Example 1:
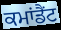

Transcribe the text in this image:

ਕਮਾਂਡੈਂਟ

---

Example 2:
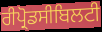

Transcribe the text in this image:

ਰੀਪ੍ਰੋਡਸੀਬਿਲਟੀ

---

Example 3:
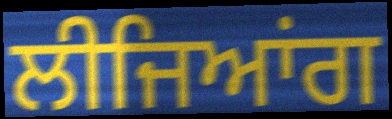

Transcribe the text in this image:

ਲੀਜਿਆਂਗ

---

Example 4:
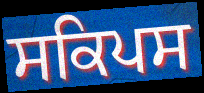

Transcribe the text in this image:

ਸਕਿਪਸ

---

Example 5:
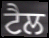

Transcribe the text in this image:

ਟੈਲ